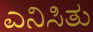
ಎನಿಸಿತು